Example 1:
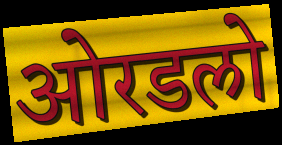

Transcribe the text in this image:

ओरडलो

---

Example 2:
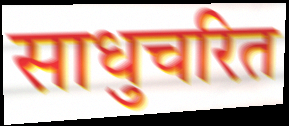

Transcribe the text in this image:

साधुचरित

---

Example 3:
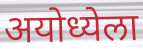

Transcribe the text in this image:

अयोध्येला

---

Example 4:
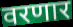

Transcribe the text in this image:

वरणार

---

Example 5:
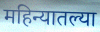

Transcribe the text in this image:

महिन्यातल्या